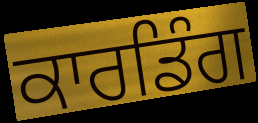
ਕਾਰਡਿੰਗ